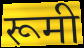
रूमी